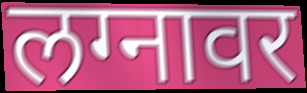
लग्नावर